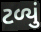
ટળ્યું